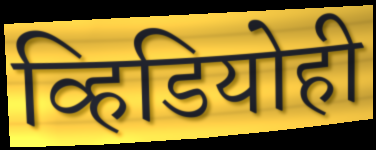
व्हिडियोही